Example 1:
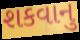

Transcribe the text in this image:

શકવાનુ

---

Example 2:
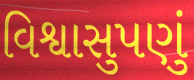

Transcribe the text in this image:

વિશ્વાસુપણું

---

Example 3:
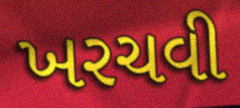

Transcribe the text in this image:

ખરચવી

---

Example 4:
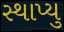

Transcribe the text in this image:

સ્થાપ્યુ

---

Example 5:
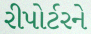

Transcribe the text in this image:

રીપોર્ટરને